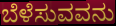
ಬೆಳೆಸುವವನು